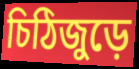
চিঠিজুড়ে